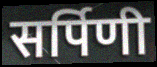
सर्पिणी